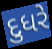
દુધરે